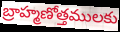
బ్రాహ్మణోత్తములకు